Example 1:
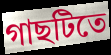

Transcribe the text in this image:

গাছটিতে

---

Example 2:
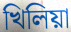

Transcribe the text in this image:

খিলিয়া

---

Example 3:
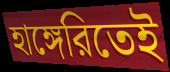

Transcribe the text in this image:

হাঙ্গেরিতেই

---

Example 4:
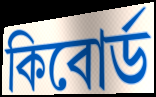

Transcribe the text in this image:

কিবোর্ড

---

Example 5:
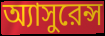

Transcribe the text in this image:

অ্যাসুরেন্স